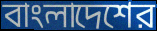
বাংলাদেশের